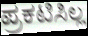
ಪ್ರಕಟಿಸಿಲ್ಲ